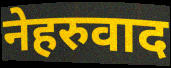
नेहरुवाद